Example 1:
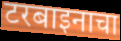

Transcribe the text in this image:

टरबाइनाचा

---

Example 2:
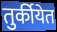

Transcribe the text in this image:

तुर्कीयेत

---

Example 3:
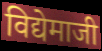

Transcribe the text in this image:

विद्येमाजी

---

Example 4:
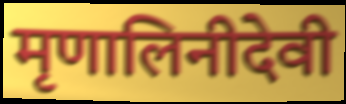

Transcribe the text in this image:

मृणालिनीदेवी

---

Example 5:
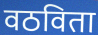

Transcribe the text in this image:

वठविता